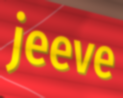
jeeve